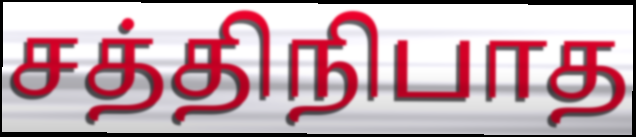
சத்திநிபாத